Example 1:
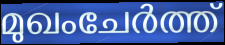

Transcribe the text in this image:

മുഖംചേർത്ത്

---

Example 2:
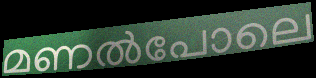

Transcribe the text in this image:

മണൽപോലെ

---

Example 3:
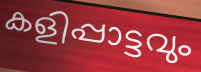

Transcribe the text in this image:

കളിപ്പാട്ടവും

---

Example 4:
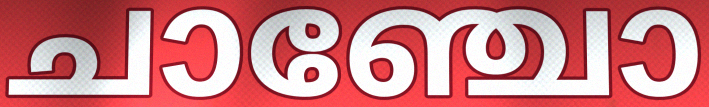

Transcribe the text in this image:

ചാഞ്ചോ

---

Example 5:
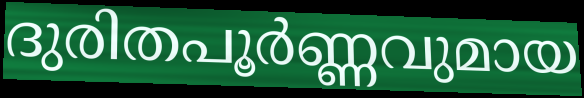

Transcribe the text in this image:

ദുരിതപൂർണ്ണവുമായ